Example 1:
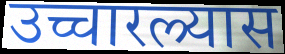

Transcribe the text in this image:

उच्चारल्यास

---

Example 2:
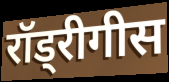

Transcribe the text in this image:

रॉड्रीगीस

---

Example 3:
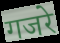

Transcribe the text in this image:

गजरे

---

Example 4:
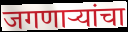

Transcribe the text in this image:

जगणाऱ्यांचा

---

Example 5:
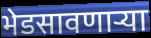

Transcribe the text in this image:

भेडसावणाऱ्या